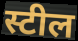
स्टील